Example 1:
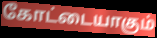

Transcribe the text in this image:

கோட்டையாகும்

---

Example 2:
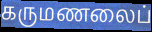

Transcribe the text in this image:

கருமணலைப்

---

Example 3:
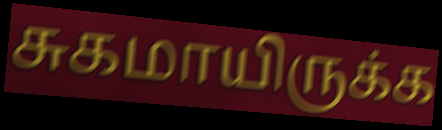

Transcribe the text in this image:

சுகமாயிருக்க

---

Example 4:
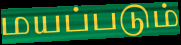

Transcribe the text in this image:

மயப்படும்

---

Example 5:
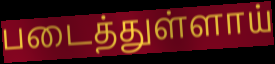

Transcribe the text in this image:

படைத்துள்ளாய்